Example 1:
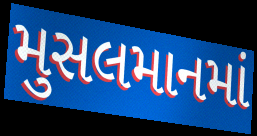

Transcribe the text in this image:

મુસલમાનમાં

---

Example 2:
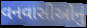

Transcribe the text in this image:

વનવાસીઓનું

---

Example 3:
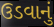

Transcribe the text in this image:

ઉડવાનું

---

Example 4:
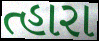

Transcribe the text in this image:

ત્હારા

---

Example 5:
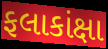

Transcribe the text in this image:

ફલાકાંક્ષા